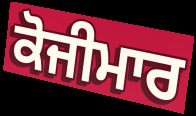
ਕੋਜੀਮਾਰ